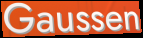
Gaussen